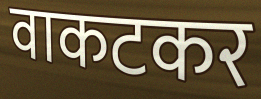
वाकटकर